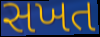
સખત